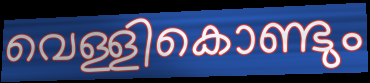
വെള്ളികൊണ്ടും